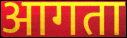
आगता